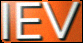
IEV